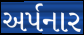
અર્પનાર